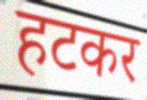
हटकर